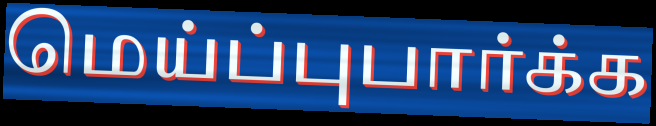
மெய்ப்புபார்க்க